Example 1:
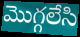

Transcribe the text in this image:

మొగ్గలేసి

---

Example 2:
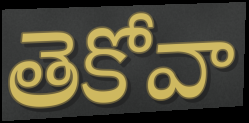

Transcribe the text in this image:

తెకోవా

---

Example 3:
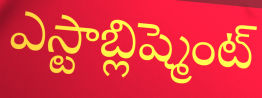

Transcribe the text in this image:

ఎస్టాబ్లిష్మెంట్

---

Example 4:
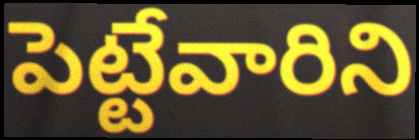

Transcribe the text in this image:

పెట్టేవారిని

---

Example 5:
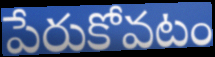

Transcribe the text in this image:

పేరుకోవటం